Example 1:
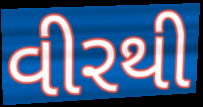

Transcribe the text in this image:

વીરથી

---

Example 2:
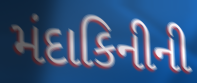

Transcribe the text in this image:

મંદાકિનીની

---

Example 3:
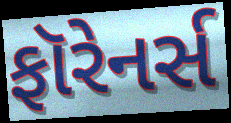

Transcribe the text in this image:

ફૉરેનર્સ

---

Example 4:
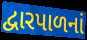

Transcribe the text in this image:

દ્વારપાળનાં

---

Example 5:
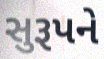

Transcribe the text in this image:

સુરૂપને